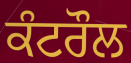
ਕੰਟਰੌਲ